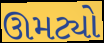
ઊમટ્યો